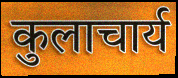
कुलाचार्य